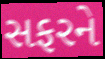
સફરને